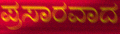
ಪ್ರಸಾರವಾದ